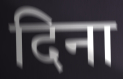
दिना